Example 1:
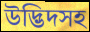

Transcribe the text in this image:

উদ্ভিদসহ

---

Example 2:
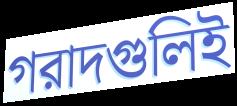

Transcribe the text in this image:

গরাদগুলিই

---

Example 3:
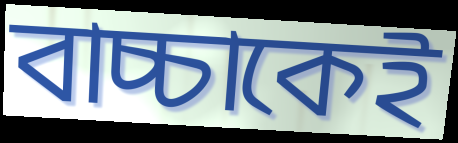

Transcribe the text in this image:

বাচ্চাকেই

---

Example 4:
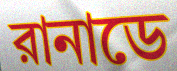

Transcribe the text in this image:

রানাডে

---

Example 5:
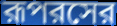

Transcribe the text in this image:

রূপরসের